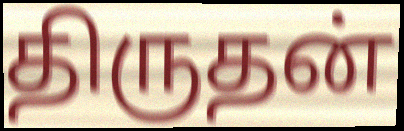
திருதன்